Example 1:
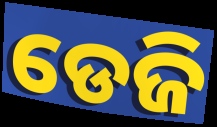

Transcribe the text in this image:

ଡେଜି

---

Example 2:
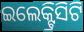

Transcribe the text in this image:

ଇଲେକ୍ଟ୍ରିସିଟି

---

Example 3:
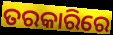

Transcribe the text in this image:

ତରକାରିରେ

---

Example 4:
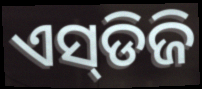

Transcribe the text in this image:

ଏସ୍‌ଡିଜି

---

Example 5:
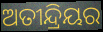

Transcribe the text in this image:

ଅତୀନ୍ଦ୍ରିୟର